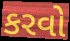
કરવો